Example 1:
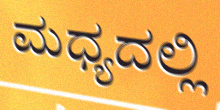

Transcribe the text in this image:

ಮಧ್ಯದಲ್ಲಿ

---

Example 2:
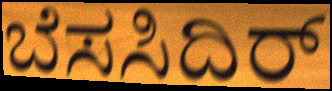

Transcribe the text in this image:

ಬೆಸಸಿದಿರ್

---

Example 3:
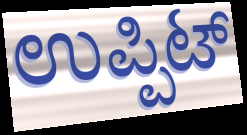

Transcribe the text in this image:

ಉಪ್ಪಿಟ್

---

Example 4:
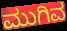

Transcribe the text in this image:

ಮುಗಿವ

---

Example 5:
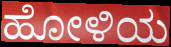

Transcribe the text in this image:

ಹೋಳಿಯ